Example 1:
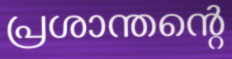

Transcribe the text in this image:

പ്രശാന്തന്റെ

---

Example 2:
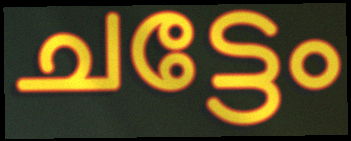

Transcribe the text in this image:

ചട്ടേം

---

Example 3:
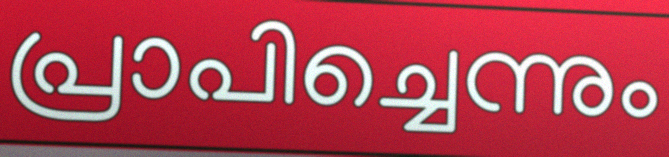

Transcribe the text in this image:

പ്രാപിച്ചെന്നും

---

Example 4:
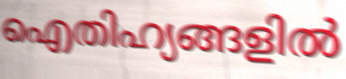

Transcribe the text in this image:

ഐതിഹ്യങ്ങളിൽ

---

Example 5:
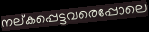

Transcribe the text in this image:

നല്കപ്പെട്ടവരെപ്പോലെ